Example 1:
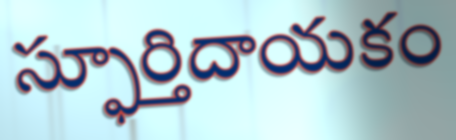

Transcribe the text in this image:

స్ఫూర్తిదాయకం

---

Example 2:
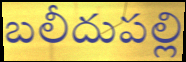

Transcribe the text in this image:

బలీదుపల్లి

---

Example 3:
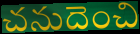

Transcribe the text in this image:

చనుదెంచి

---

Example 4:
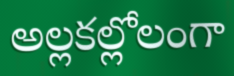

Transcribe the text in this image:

అల్లకల్లోలంగా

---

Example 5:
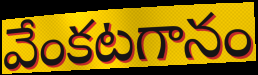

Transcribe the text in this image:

వేంకటగానం